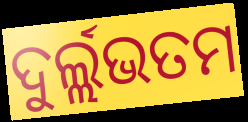
ଦୁର୍ଲ୍ଲଭତମ